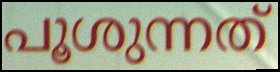
പൂശുന്നത്